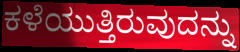
ಕಳೆಯುತ್ತಿರುವುದನ್ನು